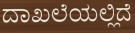
ದಾಖಲೆಯಲ್ಲಿದೆ